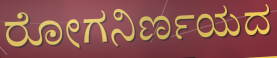
ರೋಗನಿರ್ಣಯದ